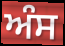
ਅੰਸ